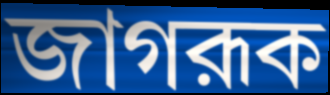
জাগরূক